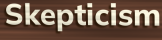
Skepticism